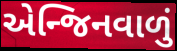
એન્જિનવાળું